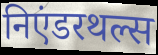
निएंडरथल्स